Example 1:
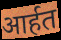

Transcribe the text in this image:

आर्हत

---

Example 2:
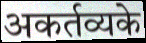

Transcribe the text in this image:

अकर्तव्यके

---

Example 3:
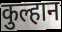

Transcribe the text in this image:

कुल्हान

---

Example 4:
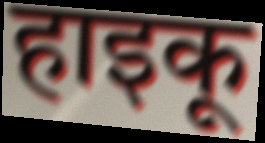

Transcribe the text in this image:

हाइकू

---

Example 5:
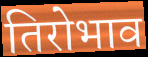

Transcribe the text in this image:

तिरोभाव